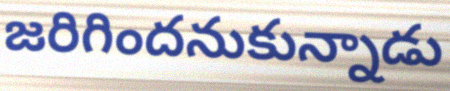
జరిగిందనుకున్నాడు